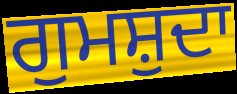
ਗੁਮਸ਼ੁਦਾ